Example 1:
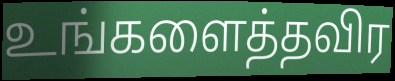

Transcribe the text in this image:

உங்களைத்தவிர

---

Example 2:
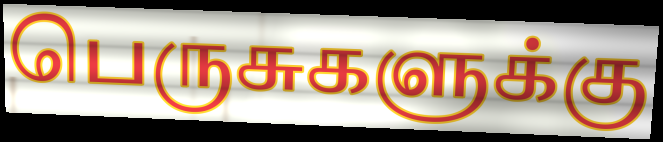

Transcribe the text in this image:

பெருசுகளுக்கு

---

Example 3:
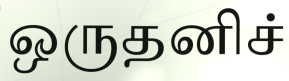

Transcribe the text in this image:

ஒருதனிச்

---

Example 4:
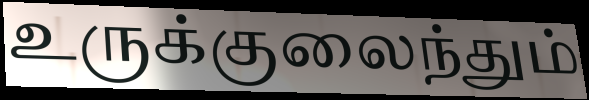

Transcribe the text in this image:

உருக்குலைந்தும்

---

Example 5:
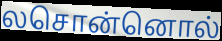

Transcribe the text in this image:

லசொன்னொல்